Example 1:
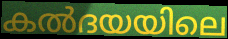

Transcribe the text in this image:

കൽദയയിലെ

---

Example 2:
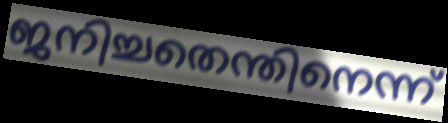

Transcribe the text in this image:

ജനിച്ചതെന്തിനെന്ന്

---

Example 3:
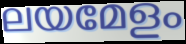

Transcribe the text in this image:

ലയമേളം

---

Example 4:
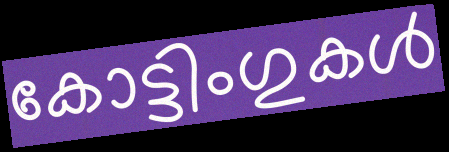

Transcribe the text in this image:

കോട്ടിംഗുകൾ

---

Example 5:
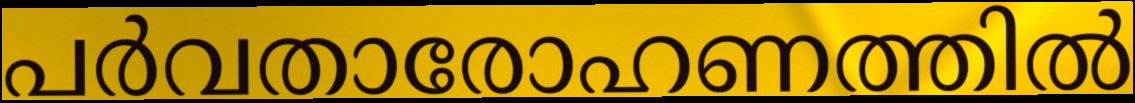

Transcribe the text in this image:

പർവതാരോഹണത്തിൽ